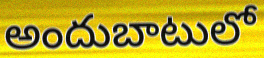
అందుబాటులో